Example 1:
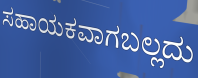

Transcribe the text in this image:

ಸಹಾಯಕವಾಗಬಲ್ಲದು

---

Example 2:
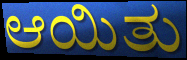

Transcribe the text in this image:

ಆಯಿತು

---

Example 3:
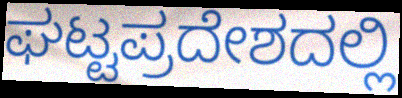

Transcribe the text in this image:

ಘಟ್ಟಪ್ರದೇಶದಲ್ಲಿ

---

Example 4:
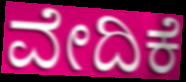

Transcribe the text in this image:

ವೇದಿಕೆ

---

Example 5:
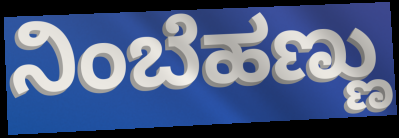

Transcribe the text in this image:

ನಿಂಬೆಹಣ್ಣು